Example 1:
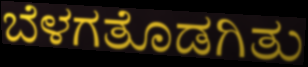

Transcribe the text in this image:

ಬೆಳಗತೊಡಗಿತು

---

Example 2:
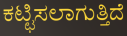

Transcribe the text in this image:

ಕಟ್ಟಿಸಲಾಗುತ್ತಿದೆ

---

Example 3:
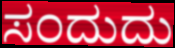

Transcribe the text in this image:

ಸಂದುದು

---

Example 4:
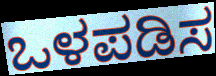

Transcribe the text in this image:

ಒಳಪಡಿಸ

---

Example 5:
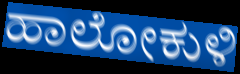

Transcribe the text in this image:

ಹಾಲೋಕುಳಿ